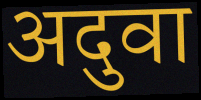
अदुवा